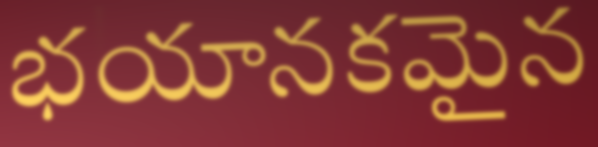
భయానకమైన